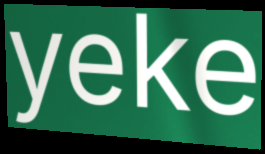
yeke